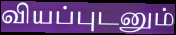
வியப்புடனும்